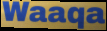
Waaqa